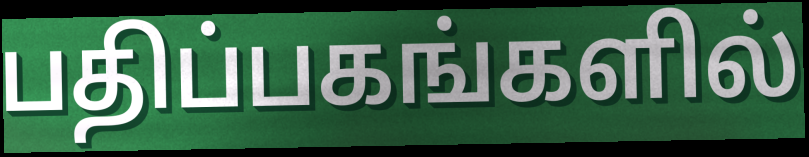
பதிப்பகங்களில்